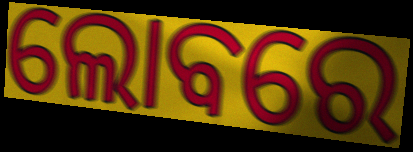
ଲୋବରେ